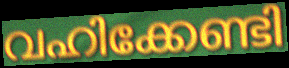
വഹിക്കേണ്ടി